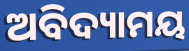
ଅବିଦ୍ୟାମୟ